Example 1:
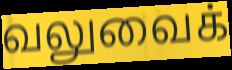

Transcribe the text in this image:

வலுவைக்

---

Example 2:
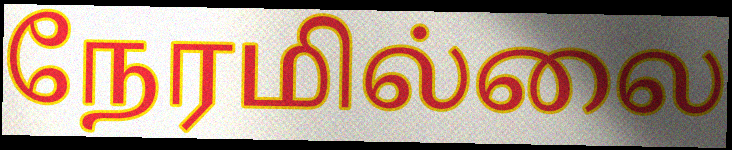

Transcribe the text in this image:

நேரமில்லை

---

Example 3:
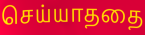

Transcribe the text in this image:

செய்யாததை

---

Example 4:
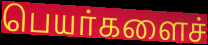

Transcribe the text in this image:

பெயர்களைச்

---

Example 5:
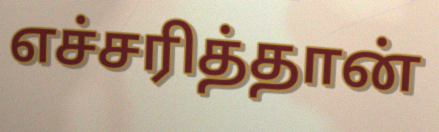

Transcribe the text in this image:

எச்சரித்தான்